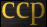
ccp